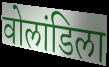
वोलांडिला